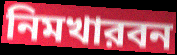
নিমখারবন